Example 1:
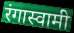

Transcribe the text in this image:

रंगास्वामी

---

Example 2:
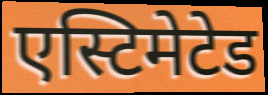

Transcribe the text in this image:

एस्टिमेटेड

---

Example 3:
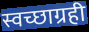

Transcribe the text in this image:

स्वच्छाग्रही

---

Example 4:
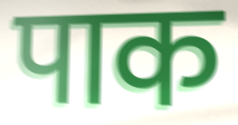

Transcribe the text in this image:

पाक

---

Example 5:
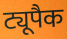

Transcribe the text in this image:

ट्यूपैक